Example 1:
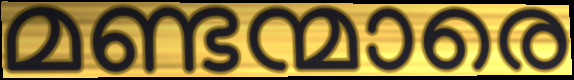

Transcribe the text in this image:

മണ്ടന്മാരെ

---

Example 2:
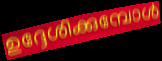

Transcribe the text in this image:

ഉദ്ദേശിക്കുമ്പോൾ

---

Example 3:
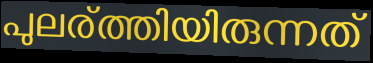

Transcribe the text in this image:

പുലര്ത്തിയിരുന്നത്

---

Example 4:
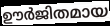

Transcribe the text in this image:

ഊർജിതമായ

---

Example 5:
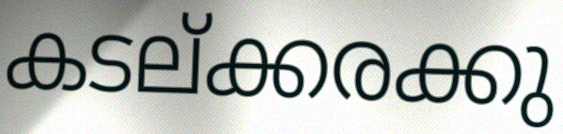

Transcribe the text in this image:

കടല്ക്കരക്കു